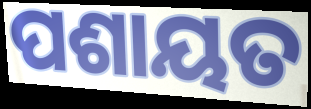
ପଶାୟତ